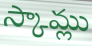
స్కామ్లు